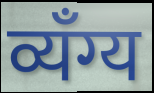
व्यँग्य